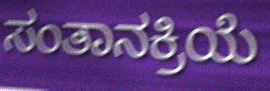
ಸಂತಾನಕ್ರಿಯೆ